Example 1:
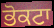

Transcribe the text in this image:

ਭੋਕਟਾ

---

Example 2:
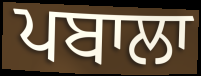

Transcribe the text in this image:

ਪਬਾਲਾ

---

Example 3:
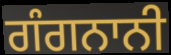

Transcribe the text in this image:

ਗੰਗਨਾਨੀ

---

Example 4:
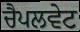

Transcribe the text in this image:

ਚੈਪਲਵੇਟ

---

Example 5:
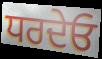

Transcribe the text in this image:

ਧਰਦੇਓ